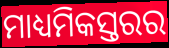
ମାଧ୍ୟମିକସ୍ତରର